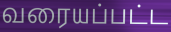
வரையப்பட்ட